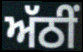
ਅੱਠੀਂ